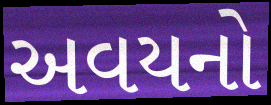
અવયનો